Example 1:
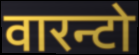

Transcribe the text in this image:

वारन्टो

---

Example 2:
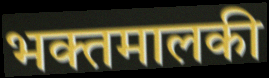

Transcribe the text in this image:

भक्तमालकी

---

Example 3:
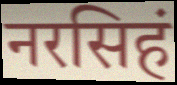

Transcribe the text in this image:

नरसिहं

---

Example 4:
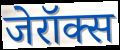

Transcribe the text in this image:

जेरॉक्स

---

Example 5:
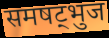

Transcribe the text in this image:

समषट्भुज